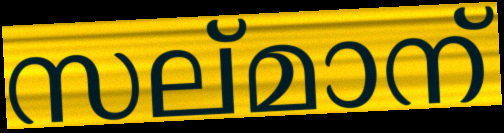
സല്മാന്